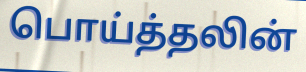
பொய்த்தலின்